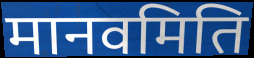
मानवमिति